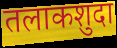
तलाकशुदा